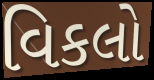
વિકલો